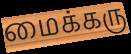
மைக்கரு